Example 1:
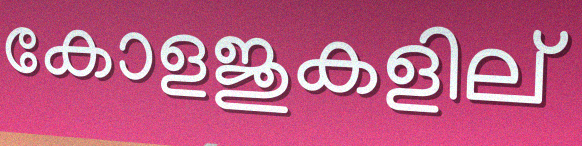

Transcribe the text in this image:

കോളജുകളില്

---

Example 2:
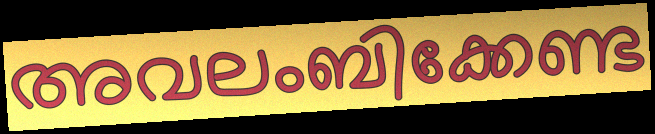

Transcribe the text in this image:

അവലംബിക്കേണ്ട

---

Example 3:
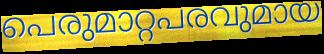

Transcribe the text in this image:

പെരുമാറ്റപരവുമായ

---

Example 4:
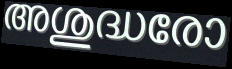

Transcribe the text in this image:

അശുദ്ധരോ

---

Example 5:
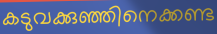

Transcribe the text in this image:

കടുവക്കുഞ്ഞിനെക്കണ്ട